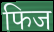
फिज